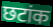
छटांक